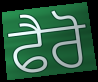
ਫੈਰੋ